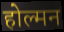
होल्मन